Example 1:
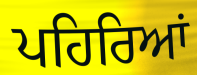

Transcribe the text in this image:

ਪਹਿਰਿਆਂ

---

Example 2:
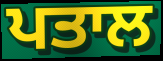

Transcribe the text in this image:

ਪਤਾਲ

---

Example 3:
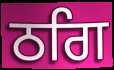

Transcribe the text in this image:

ਠਗਿ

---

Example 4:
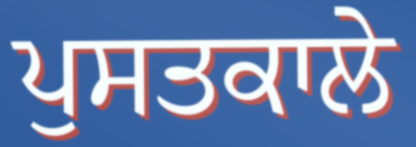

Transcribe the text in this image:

ਪੁਸਤਕਾਲੇ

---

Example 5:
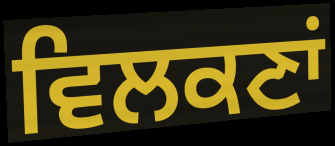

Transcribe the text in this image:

ਵਿਲਕਣਾਂ